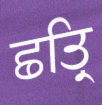
ਛਤ੍ਰਿ